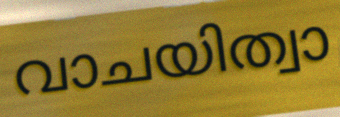
വാചയിത്വാ